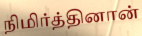
நிமிர்த்தினான்